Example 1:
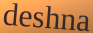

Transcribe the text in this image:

deshna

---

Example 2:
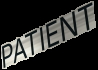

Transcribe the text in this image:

PATIENT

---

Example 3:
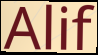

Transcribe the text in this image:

Alif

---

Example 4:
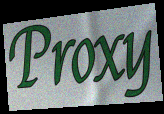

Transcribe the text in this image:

Proxy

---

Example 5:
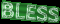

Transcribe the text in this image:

BLESS